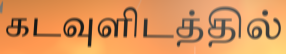
கடவுளிடத்தில்